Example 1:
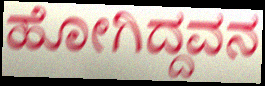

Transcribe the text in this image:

ಹೋಗಿದ್ದವನ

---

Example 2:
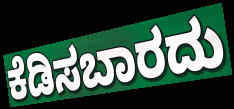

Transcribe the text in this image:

ಕೆಡಿಸಬಾರದು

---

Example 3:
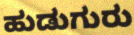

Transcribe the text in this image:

ಹುಡುಗುರು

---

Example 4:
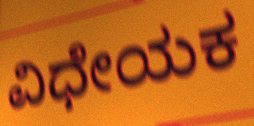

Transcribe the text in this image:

ವಿಧೇಯಕ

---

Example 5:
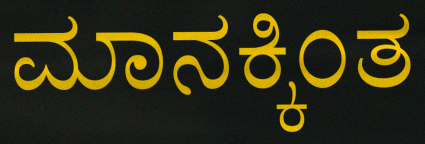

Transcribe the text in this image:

ಮಾನಕ್ಕಿಂತ